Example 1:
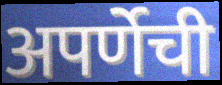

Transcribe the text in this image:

अपर्णेची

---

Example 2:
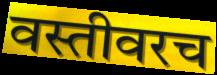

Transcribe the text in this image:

वस्तीवरच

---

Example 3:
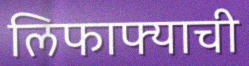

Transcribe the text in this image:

लिफाफ्याची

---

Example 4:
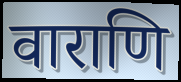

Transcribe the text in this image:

वाराणि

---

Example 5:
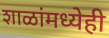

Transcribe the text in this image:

शाळांमध्येही